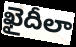
ఖైదీలా